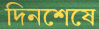
দিনশেষে